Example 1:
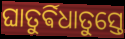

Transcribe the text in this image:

ଘାତୁର୍ଵିଧାତୁସ୍ତେ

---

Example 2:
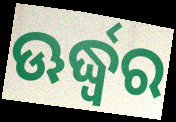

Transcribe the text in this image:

ଊର୍ଦ୍ଧ୍ଵର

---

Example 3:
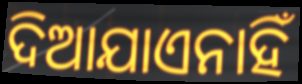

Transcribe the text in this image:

ଦିଆଯାଏନାହିଁ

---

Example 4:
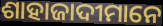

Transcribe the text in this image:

ଶାହାଜାଦୀମାନେ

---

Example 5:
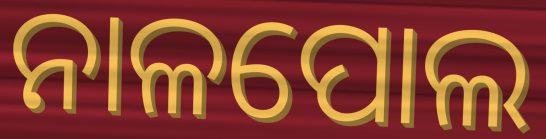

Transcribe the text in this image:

ନାଳପୋଲ